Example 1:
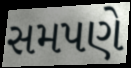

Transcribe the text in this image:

સમપણે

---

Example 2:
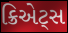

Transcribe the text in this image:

ક્રિએટ્સ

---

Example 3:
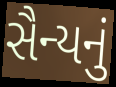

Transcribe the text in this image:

સૈન્યનું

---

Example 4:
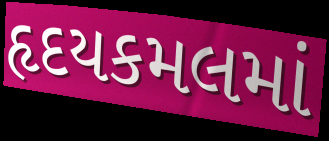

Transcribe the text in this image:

હૃદયકમલમાં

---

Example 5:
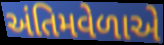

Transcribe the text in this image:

અંતિમવેળાએ